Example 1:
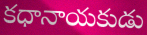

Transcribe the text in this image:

కధానాయకుడు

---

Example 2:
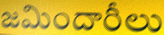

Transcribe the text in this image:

జమిందారీలు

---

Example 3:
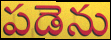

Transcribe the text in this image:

పడెను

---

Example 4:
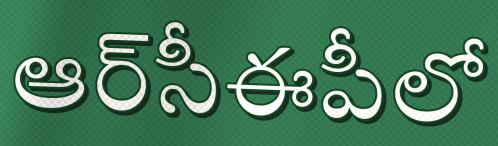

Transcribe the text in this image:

ఆర్‌సీఈపీలో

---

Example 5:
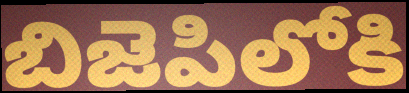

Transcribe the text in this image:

బిజెపిలోకి